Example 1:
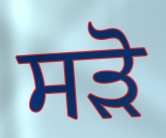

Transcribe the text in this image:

ਸੜੋ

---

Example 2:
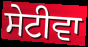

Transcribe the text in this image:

ਸੇਟੀਵਾ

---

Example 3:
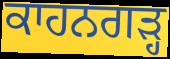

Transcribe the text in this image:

ਕਾਹਨਗੜ੍ਹ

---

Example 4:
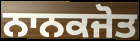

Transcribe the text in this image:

ਨਾਨਕਜੋਤ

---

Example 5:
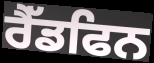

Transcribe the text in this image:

ਰੈੱਡਫਿਨ